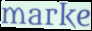
marke